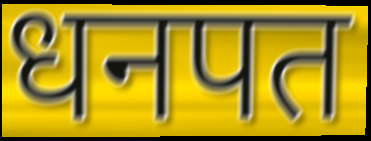
धनपत